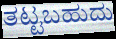
ತಟ್ಟಬಹುದು